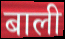
बाली